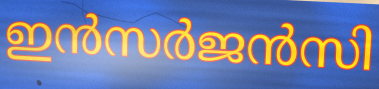
ഇൻസർജൻസി